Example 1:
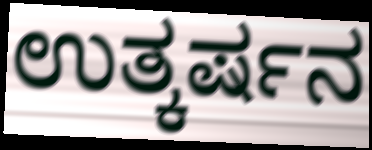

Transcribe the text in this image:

ಉತ್ಕರ್ಷನ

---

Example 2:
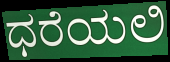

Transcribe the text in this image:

ಧರೆಯಲಿ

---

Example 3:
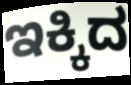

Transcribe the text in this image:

ಇಕ್ಕಿದ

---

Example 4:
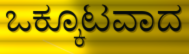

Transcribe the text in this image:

ಒಕ್ಕೂಟವಾದ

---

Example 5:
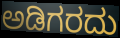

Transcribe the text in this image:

ಅಡಿಗರದು